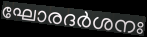
ഘോരദർശനഃ